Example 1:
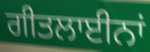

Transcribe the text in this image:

ਗੀਤਲਾਈਨਾਂ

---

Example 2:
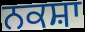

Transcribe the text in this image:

ਨਕਸ਼ਾ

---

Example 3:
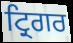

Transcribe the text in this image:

ਟ੍ਰਿਗਰ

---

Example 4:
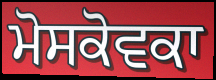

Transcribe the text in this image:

ਮੋਸਕੋਵਕਾ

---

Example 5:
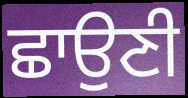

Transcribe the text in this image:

ਛਾਉਣੀ